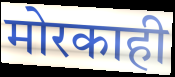
मोरकाही